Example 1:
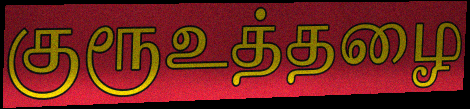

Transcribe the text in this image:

குரூஉத்தழை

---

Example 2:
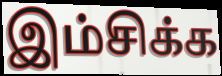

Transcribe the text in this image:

இம்சிக்க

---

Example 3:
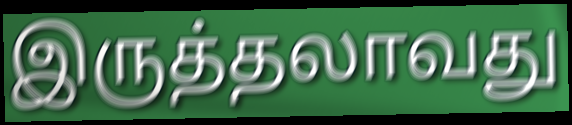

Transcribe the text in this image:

இருத்தலாவது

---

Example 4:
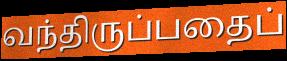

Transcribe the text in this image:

வந்திருப்பதைப்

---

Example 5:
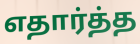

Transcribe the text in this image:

எதார்த்த